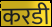
करडी